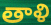
తాళి